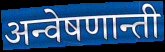
अन्वेषणान्ती